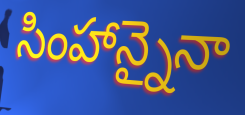
సింహాన్నైనా